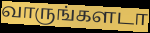
வாருங்களடா